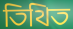
তিথিত